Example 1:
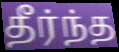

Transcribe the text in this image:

தீர்ந்த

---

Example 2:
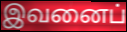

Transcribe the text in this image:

இவனைப்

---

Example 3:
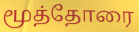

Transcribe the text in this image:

மூத்தோரை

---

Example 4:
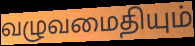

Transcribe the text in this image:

வழுவமைதியும்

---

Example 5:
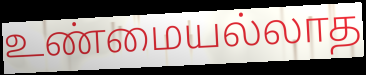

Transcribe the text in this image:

உண்மையல்லாத